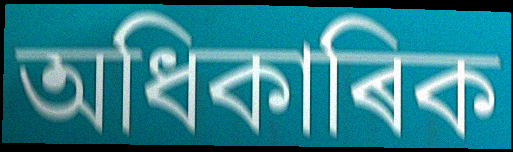
অধিকাৰিক